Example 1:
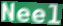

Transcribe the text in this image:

Neel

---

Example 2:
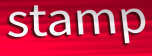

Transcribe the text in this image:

stamp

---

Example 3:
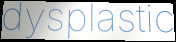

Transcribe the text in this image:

dysplastic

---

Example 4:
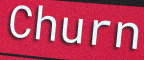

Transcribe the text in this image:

Churn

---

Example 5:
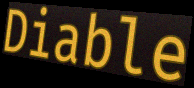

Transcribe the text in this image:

Diable